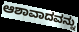
ಆಶಾವಾದವನ್ನು